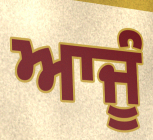
ਆਜੂੰ